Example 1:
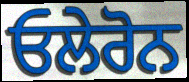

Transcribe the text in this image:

ਓਲੇਰੋਨ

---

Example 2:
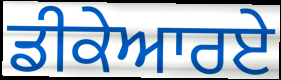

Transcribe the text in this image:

ਡੀਕੇਆਰਏ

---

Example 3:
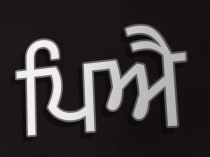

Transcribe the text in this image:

ਪਿਐ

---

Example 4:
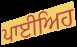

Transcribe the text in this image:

ਪਾਈਅਿਹ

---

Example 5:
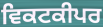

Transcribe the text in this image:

ਵਿਕਟਕੀਪਰ